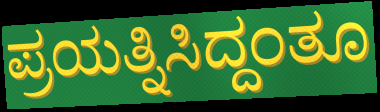
ಪ್ರಯತ್ನಿಸಿದ್ದಂತೂ